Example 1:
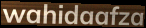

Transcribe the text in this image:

wahidaafza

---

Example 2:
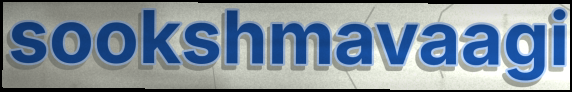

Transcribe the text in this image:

sookshmavaagi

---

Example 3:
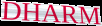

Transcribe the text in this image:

DHARM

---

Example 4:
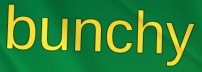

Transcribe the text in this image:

bunchy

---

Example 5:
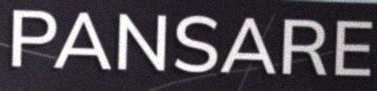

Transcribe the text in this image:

PANSARE